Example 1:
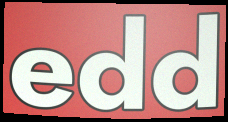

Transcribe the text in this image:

edd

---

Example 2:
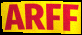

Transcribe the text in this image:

ARFF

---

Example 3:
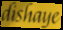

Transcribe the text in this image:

dishaye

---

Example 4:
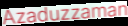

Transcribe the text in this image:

Azaduzzaman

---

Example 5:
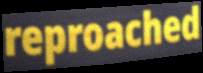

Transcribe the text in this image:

reproached